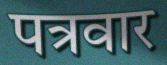
पत्रवार